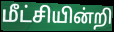
மீட்சியின்றி